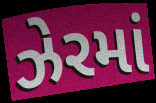
ઝેરમાં